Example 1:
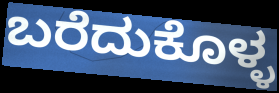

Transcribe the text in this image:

ಬರೆದುಕೊಳ್ಳ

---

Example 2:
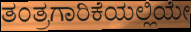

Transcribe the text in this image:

ತಂತ್ರಗಾರಿಕೆಯಲ್ಲಿಯೇ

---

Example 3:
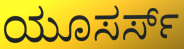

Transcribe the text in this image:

ಯೂಸರ್ಸ್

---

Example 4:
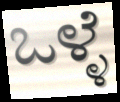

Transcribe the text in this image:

ಒಳ್ಳೆ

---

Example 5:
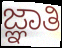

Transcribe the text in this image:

ಜ್ಞಾತಿ